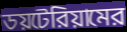
ডয়টেরিয়ামের